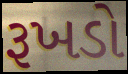
રૂખડો